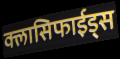
क्लासिफाईड्स